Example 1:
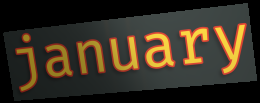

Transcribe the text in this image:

january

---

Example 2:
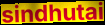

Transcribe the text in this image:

sindhutai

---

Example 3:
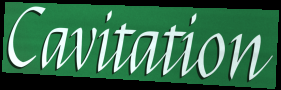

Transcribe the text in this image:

Cavitation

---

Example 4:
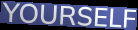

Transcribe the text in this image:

YOURSELF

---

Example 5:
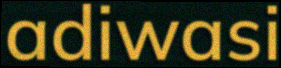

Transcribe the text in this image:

adiwasi